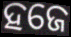
ହଜେ